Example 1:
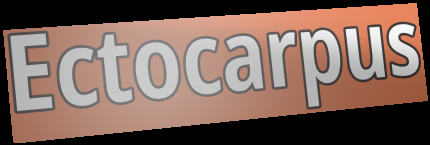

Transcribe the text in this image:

Ectocarpus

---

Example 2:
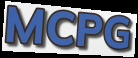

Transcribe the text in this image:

MCPG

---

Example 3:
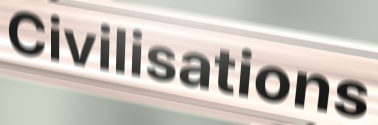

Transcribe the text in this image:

Civilisations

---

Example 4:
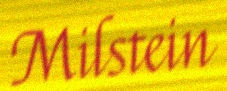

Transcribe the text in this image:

Milstein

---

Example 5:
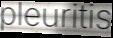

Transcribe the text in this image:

pleuritis